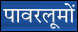
पावरलूमों